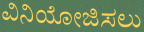
ವಿನಿಯೋಜಿಸಲು